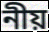
নীয়